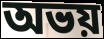
অভয়